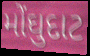
મોંઘુદાટ